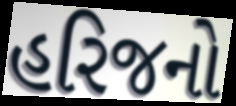
હરિજનો